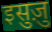
इसुज़ु